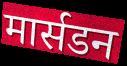
मार्सडन